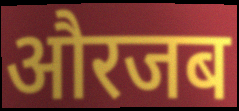
औरजब